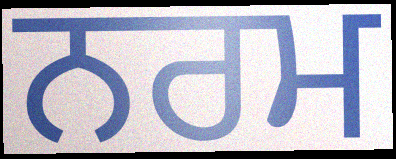
ਨਰਮ